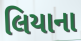
લિયાના